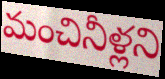
మంచినీళ్లని